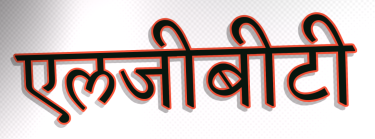
एलजीबीटी